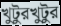
খুটুরখুটুর